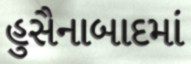
હુસૈનાબાદમાં